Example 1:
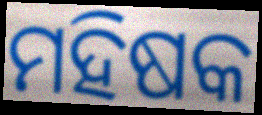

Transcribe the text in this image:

ମହିଷକ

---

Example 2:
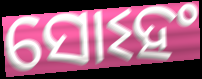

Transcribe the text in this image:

ସୋଽହଂ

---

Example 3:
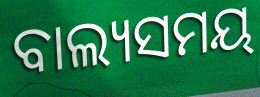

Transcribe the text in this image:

ବାଲ୍ୟସମୟ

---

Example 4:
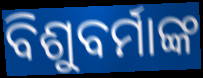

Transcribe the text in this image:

ବିଶୁବର୍ମାଙ୍କ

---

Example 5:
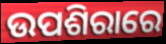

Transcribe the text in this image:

ଉପଶିରାରେ